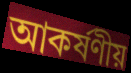
আকৰ্ষণীয়